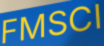
FMSCI